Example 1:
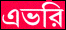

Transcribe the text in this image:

এভরি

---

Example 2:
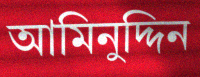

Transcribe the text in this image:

আমিনুদ্দিন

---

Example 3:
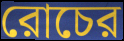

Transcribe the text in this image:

রোচের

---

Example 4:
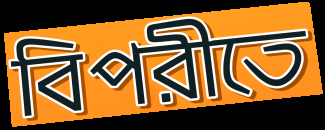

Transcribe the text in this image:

বিপরীতে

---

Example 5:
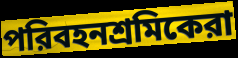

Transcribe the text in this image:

পরিবহনশ্রমিকেরা